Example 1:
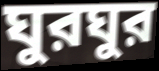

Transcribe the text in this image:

ঘুরঘুর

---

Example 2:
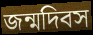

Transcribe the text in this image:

জন্মদিবস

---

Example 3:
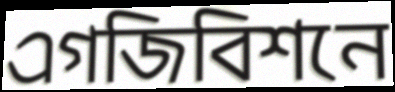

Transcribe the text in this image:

এগজিবিশনে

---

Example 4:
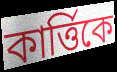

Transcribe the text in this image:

কার্ত্তিকে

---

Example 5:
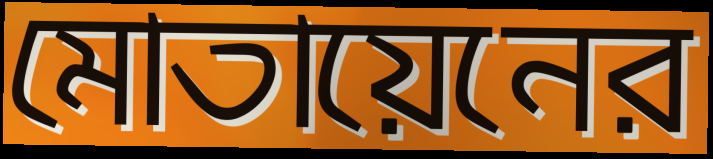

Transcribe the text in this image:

মোতায়েনের